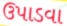
ઉપાડવા